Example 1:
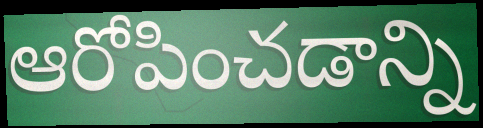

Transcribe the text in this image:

ఆరోపించడాన్ని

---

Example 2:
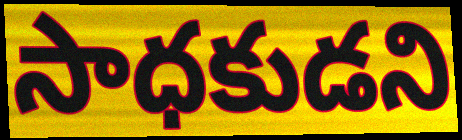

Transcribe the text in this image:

సాధకుడని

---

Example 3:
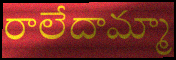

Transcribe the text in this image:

రాలేదామ్మా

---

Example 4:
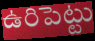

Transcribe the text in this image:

ఉరిపెట్టు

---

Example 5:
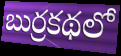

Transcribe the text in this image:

బుర్రకథలో